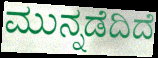
ಮುನ್ನಡೆದಿದೆ